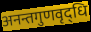
अनन्तगुणवृद्धि